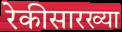
रेकीसारख्या